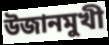
উজানমুখী